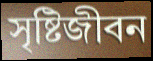
সৃষ্টিজীবন